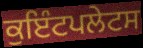
ਕੁਇੰਟਪਲੇਟਸ